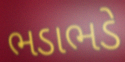
ભડાભડે